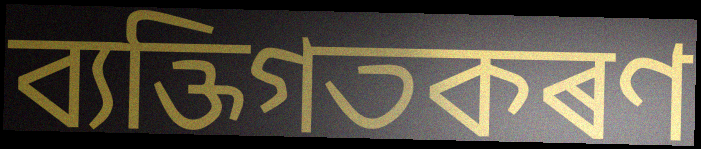
ব্যক্তিগতকৰণ